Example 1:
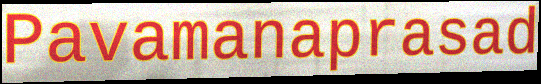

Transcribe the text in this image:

Pavamanaprasad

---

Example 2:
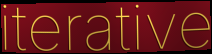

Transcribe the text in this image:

iterative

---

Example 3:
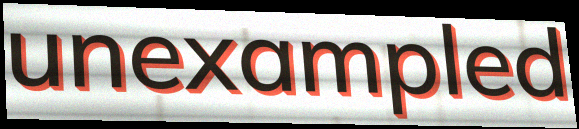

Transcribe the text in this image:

unexampled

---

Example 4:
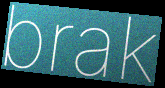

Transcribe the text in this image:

brak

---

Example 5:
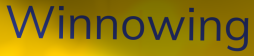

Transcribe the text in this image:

Winnowing